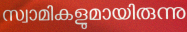
സ്വാമികളുമായിരുന്നു